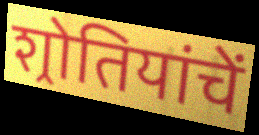
श्रोतियांचें